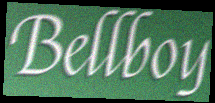
Bellboy